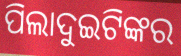
ପିଲାଦୁଇଟିଙ୍କର